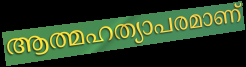
ആത്മഹത്യാപരമാണ്